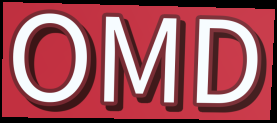
OMD